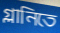
গ্লানিতে